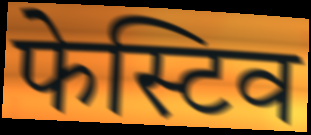
फेस्टिव